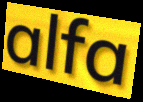
alfa